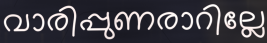
വാരിപ്പുണരാറില്ലേ